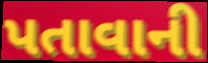
પતાવાની